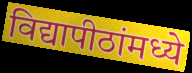
विद्यापीठांमध्ये